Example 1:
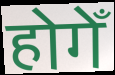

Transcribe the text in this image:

होगेँ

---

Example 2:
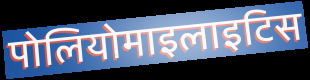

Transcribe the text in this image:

पोलियोमाइलाइटिस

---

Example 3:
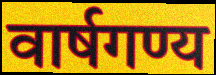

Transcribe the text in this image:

वार्षगण्य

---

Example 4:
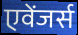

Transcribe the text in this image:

एवेंजर्स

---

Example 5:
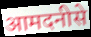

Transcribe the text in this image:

आमदनीसे